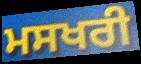
ਮਸਖਰੀ